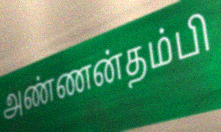
அண்ணன்தம்பி